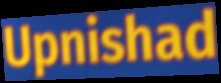
Upnishad